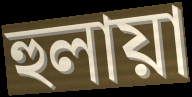
হুলায়া